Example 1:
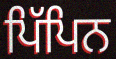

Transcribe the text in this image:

ਪਿੱਪਿਨ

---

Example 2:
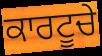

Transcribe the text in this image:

ਕਾਰਟੂਚੇ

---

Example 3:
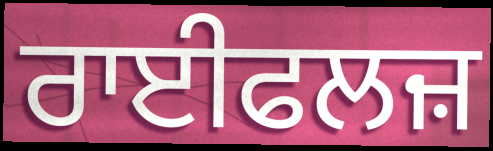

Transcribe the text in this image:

ਰਾਈਫਲਜ਼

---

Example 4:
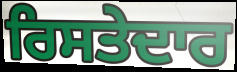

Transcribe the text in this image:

ਰਿਸਤੇਦਾਰ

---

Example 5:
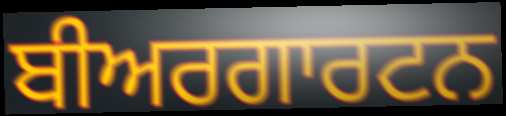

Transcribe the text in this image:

ਬੀਅਰਗਾਰਟਨ